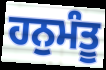
ਹਨੁਮੰਤੂ